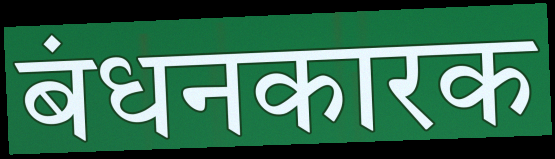
बंधनकारक